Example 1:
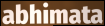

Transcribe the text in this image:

abhimata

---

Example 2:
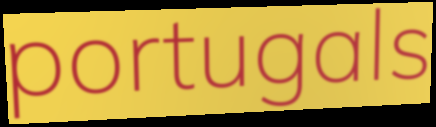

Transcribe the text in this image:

portugals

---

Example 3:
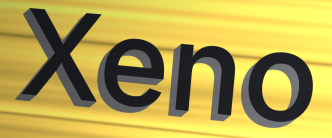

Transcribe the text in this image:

Xeno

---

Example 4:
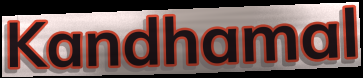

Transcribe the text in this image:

Kandhamal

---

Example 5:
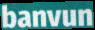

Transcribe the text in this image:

banvun